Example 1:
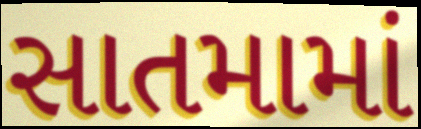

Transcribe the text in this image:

સાતમામાં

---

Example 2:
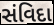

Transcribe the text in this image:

સંવિદા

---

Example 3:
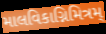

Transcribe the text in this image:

માલવિકાગ્નિમિત્રમ્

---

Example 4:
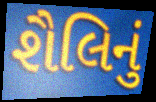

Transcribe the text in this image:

શૈલિનું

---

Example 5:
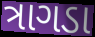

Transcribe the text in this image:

ત્રાગડા